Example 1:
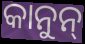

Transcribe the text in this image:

କାନୁନ୍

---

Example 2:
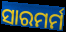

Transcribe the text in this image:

ସାରମର୍ମ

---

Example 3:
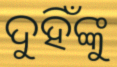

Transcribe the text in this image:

ଦୁହିଁଙ୍କୁ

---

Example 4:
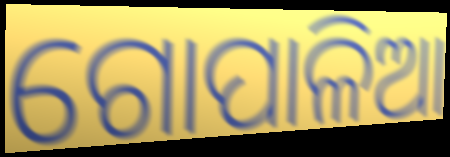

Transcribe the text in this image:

ଗୋପାଳିଆ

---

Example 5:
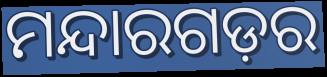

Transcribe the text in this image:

ମନ୍ଦାରଗଡ଼ର